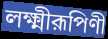
লক্ষ্মীরূপিণী